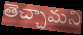
తెచ్చామని